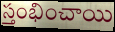
స్తంభించాయి